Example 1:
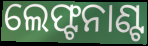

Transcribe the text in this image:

ଲେଫ୍ଟନାଣ୍ଟ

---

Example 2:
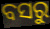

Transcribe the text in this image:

ବସରୁ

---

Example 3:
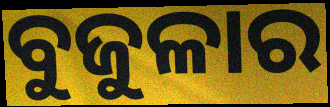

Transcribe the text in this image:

ବୁଜୁଳାର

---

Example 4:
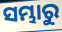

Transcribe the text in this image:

ସମ୍ଭାରୁ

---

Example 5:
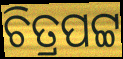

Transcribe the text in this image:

ଚିତ୍ରପଟ୍ଟ